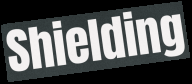
Shielding